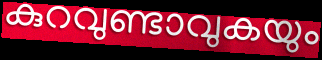
കുറവുണ്ടാവുകയും